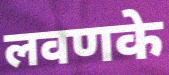
लवणके